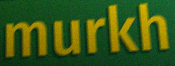
murkh